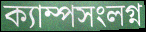
ক্যাম্পসংলগ্ন